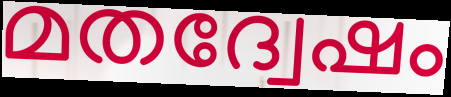
മതദ്വേഷം